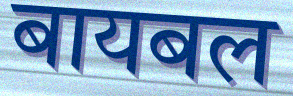
बायबल